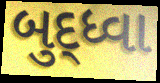
બુદ્ધ્વા